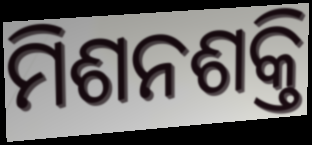
ମିଶନଶକ୍ତି